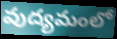
వుద్యమంలో